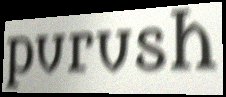
purush